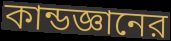
কান্ডজ্ঞানের